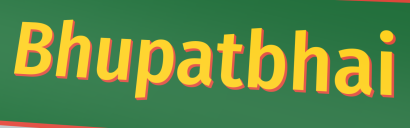
Bhupatbhai